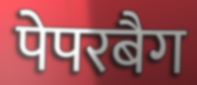
पेपरबैग